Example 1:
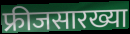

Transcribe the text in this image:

फ्रीजसारख्या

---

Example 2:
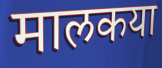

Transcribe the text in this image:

मालकया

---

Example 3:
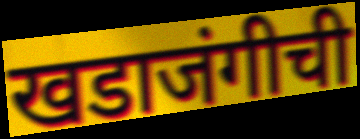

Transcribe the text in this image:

खडाजंगीची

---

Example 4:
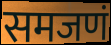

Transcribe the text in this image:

समजणं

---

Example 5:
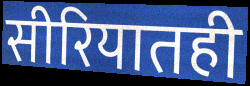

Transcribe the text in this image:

सीरियातही